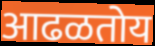
आढळतोय